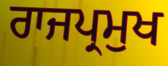
ਰਾਜਪ੍ਰਮੁਖ